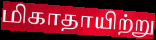
மிகாதாயிற்று